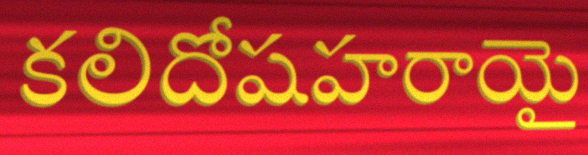
కలిదోషహరాయై